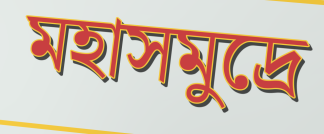
মহাসমুদ্রে